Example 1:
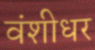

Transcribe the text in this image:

वंशीधर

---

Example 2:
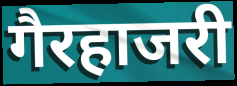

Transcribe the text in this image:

गैरहाजरी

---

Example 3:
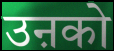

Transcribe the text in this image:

उऩको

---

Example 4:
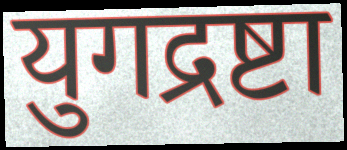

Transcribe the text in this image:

युगद्रष्टा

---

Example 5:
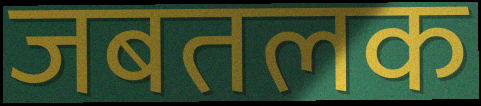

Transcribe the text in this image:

जबतलक